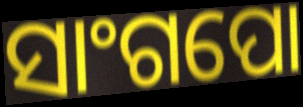
ସାଂଗପୋ